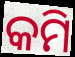
କମି